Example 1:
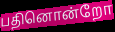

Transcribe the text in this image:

பதினொன்றோ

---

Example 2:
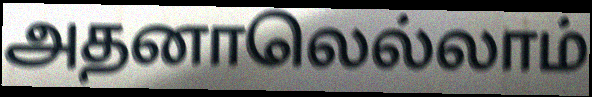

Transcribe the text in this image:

அதனாலெல்லாம்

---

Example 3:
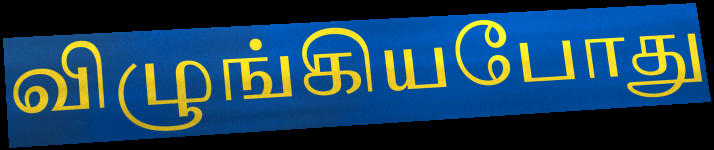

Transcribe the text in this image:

விழுங்கியபோது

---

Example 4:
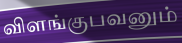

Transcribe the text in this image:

விளங்குபவனும்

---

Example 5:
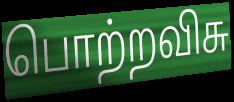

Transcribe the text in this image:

பொற்றவிசு